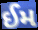
ઈમ